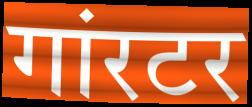
गांरटर